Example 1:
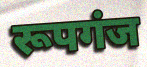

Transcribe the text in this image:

रूपगंज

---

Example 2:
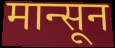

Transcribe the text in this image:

मान्सून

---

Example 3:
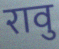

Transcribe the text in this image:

रावु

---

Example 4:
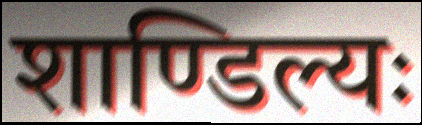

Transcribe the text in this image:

शाण्डिल्यः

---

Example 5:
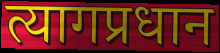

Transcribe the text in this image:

त्यागप्रधान